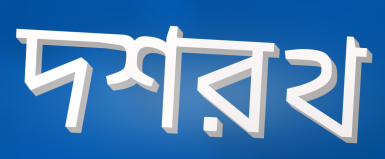
দশরথ